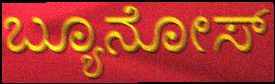
ಬ್ಯೂನೋಸ್